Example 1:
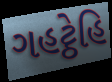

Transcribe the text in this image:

ગહટ્ઠેહિ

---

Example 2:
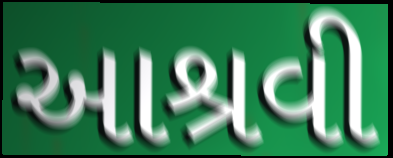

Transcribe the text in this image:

આશ્રવી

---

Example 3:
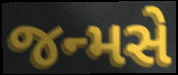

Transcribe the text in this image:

જન્મસે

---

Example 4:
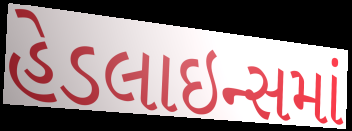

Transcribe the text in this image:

હેડલાઇન્સમાં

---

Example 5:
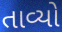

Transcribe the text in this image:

તાવ્યો